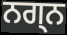
ਨਗ੍ਨ